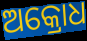
ଅକ୍ରୋଧ